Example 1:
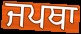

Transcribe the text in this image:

ਜਪਥਾ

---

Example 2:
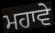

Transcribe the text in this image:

ਮਹਾਵੇ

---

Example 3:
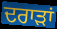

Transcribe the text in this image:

ਦਰਾੜਾਂ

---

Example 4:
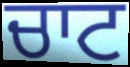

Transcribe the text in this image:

ਚਾਟ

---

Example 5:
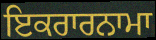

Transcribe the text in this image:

ਇਕਰਾਰਨਾਮਾ